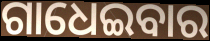
ଗାଧେଇବାର